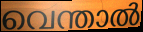
വെന്താൽ